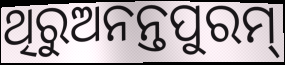
ଥିରୁଅନନ୍ତପୁରମ୍